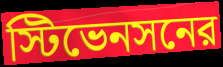
স্টিভেনসনের